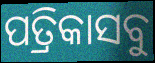
ପତ୍ରିକାସବୁ